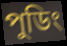
পুডিং